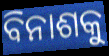
ବିନାଶକୁ